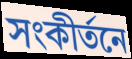
সংকীর্তনে